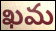
ఖమ